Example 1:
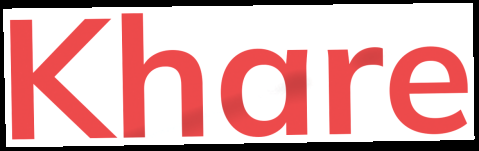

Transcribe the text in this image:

Khare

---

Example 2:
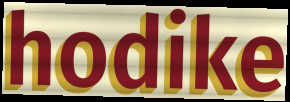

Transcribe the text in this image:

hodike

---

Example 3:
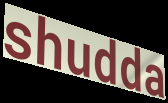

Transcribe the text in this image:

shudda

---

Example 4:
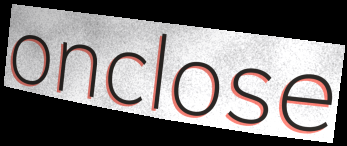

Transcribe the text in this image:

onclose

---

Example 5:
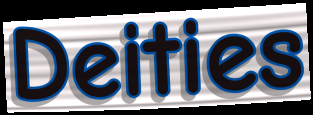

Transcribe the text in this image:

Deities